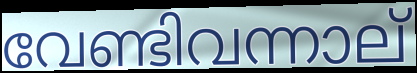
വേണ്ടിവന്നാല്